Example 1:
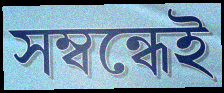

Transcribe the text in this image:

সম্বন্ধেই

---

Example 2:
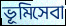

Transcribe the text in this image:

ভূমিসেবা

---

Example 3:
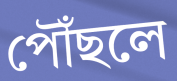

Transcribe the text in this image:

পৌঁছলে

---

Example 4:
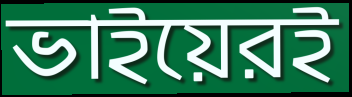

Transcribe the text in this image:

ভাইয়েরই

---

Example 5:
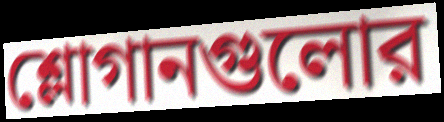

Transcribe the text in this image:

শ্লোগানগুলোর